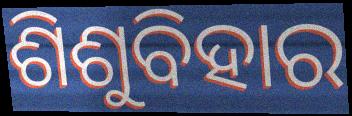
ଶିଶୁବିହାର